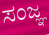
ಸಂಜ್ಞ